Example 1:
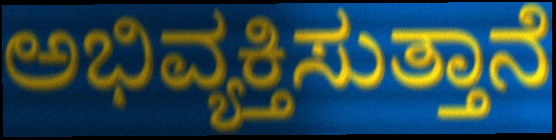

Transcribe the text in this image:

ಅಭಿವ್ಯಕ್ತಿಸುತ್ತಾನೆ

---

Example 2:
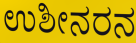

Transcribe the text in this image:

ಉಶೀನರನ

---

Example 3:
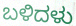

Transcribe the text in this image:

ಬಳಿದಳು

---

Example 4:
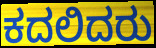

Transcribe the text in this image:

ಕದಲಿದರು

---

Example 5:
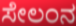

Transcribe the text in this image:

ಸೇಲಂನ